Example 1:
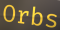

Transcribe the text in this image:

Orbs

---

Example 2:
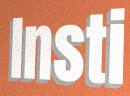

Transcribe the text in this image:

Insti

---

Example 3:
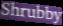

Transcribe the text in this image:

Shrubby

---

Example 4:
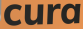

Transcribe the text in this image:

cura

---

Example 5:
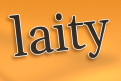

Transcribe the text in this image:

laity